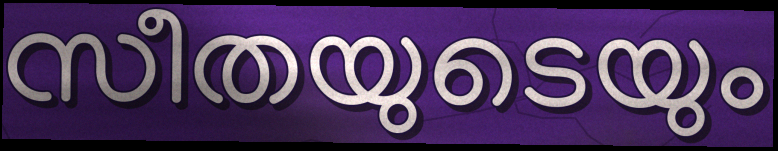
സീതയുടെയും